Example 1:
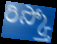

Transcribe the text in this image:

రిస్క్తో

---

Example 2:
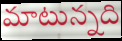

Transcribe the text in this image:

మాటున్నది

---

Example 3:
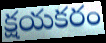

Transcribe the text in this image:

క్షయకరం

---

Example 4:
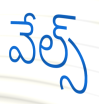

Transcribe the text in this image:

వేల్స్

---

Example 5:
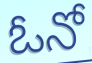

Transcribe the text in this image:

ఓనో